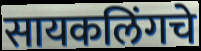
सायकलिंगचे